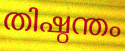
തിഷ്ഠന്തം